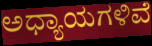
ಅಧ್ಯಾಯಗಳಿವೆ